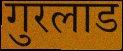
गुरलाड